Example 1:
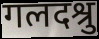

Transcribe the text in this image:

गलदश्रु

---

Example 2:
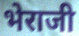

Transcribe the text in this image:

भेराजी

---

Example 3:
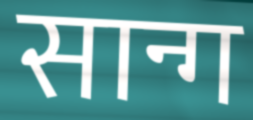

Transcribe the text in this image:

सान्ग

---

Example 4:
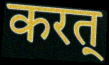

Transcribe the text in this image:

करत्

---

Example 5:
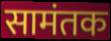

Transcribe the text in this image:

सामंतक